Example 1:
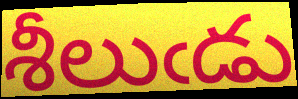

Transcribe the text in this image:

శీలుఁడు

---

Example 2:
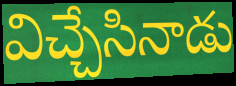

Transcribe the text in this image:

విచ్చేసినాడు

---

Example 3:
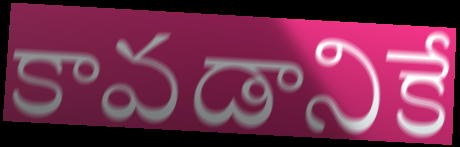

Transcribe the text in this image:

కావడానికే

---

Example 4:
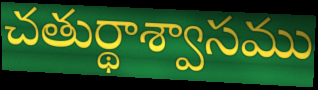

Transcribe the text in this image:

చతుర్థాశ్వాసము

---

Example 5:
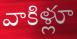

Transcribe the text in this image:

వాకిళ్లూ